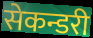
सेकन्डरी